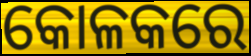
କୋଳକରେ